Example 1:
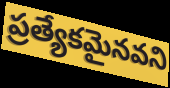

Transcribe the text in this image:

ప్రత్యేకమైనవని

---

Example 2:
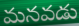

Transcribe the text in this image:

మనవడు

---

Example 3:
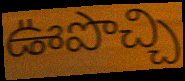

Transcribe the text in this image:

ఊపొచ్చి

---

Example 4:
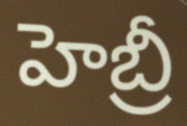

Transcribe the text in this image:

హెబ్రీ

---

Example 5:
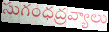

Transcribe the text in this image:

సుగంధద్రవ్యాలు